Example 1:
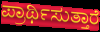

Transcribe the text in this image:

ಪ್ರಾರ್ಥಿಸುತ್ತಾರೆ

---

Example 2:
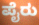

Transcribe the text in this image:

ಪೈರು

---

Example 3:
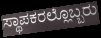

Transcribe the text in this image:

ಸ್ಥಾಪಕರಲ್ಲೊಬ್ಬರು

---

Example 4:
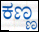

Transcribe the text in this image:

ಕಣ್ಣ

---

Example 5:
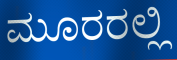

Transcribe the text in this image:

ಮೂರರಲ್ಲಿ